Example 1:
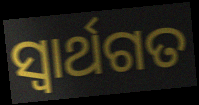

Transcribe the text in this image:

ସ୍ୱାର୍ଥଗତ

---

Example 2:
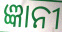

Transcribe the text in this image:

ଜ୍ଞାନୀ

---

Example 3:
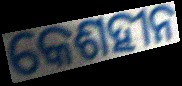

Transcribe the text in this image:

କେଶହୀନ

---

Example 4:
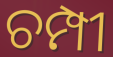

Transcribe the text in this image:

ଚମ୍ପୀ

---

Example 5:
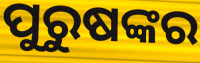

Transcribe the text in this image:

ପୁରୁଷଙ୍କର